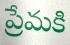
ప్రేమకి